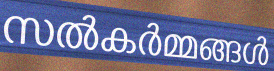
സൽകർമ്മങ്ങൾ